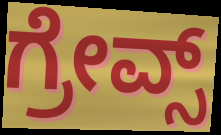
ಗ್ರೇವ್ಸ್